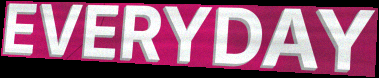
EVERYDAY